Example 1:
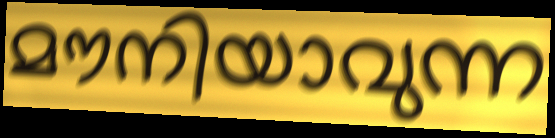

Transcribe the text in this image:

മൗനിയാവുന്ന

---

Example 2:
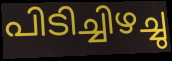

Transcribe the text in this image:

പിടിച്ചിഴച്ചു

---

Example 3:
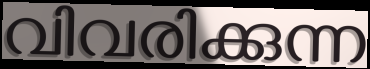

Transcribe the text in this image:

വിവരിക്കുന്ന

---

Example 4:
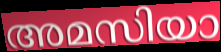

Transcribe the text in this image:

അമസിയാ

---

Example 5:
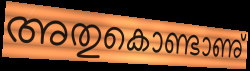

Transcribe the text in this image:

അതുകൊണ്ടാണു്